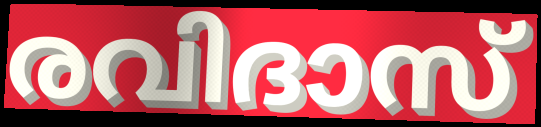
രവിദാസ്